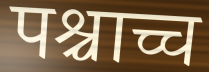
पश्चाच्च